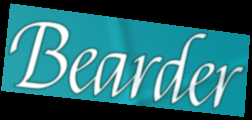
Bearder